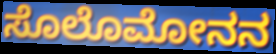
ಸೊಲೊಮೋನನ